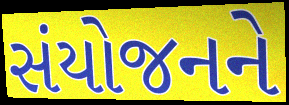
સંયોજનને